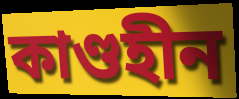
কাণ্ডহীন